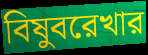
বিষুবরেখার